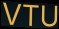
VTU